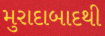
મુરાદાબાદથી